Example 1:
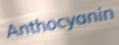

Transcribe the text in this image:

Anthocyanin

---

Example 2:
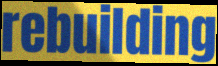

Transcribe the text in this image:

rebuilding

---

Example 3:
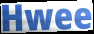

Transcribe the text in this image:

Hwee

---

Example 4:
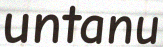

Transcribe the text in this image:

untanu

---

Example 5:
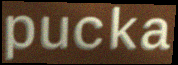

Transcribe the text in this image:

pucka